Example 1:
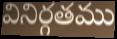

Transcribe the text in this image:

వినిర్గతము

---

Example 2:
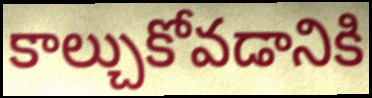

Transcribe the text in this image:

కాల్చుకోవడానికి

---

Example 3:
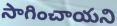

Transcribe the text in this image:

సాగించాయని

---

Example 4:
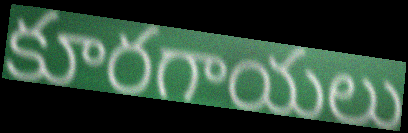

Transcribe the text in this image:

కూరగాయలు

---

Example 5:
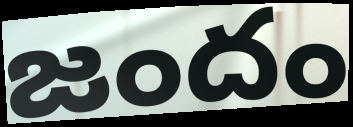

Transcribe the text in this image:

జందం